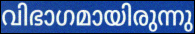
വിഭാഗമായിരുന്നു